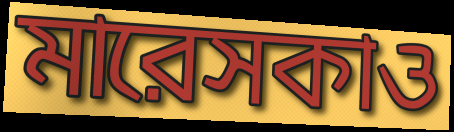
মারেসকাও